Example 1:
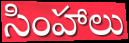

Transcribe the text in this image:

సింహాలు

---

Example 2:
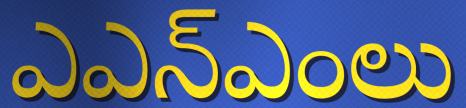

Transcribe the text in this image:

ఎఎన్ఎంలు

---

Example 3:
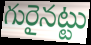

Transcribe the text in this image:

గురైనట్టు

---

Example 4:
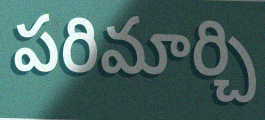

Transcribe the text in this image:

పరిమార్చి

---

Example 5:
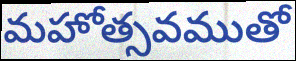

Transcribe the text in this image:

మహోత్సవముతో